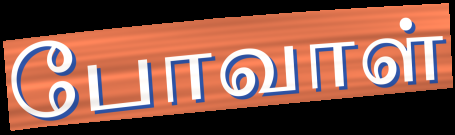
போவாள்